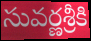
సువర్ణశ్రీకి